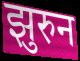
झुरुन